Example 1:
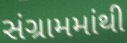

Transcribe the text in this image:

સંગ્રામમાંથી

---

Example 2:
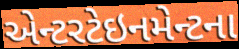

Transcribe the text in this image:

એન્ટરટેઇનમેન્ટના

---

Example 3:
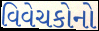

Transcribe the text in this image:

વિવેચકોનો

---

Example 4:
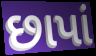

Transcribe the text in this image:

છાપાં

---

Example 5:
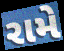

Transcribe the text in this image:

રામે